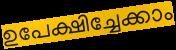
ഉപേക്ഷിച്ചേക്കാം